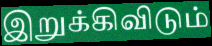
இறுக்கிவிடும்